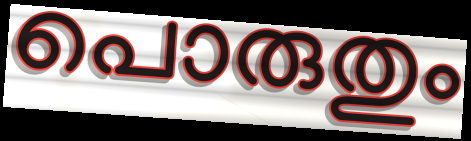
പൊരുതും